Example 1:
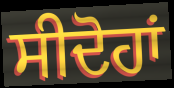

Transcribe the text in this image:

ਸੀਦੋਹਾਂ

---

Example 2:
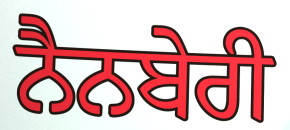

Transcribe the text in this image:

ਨੈਨਬੇਰੀ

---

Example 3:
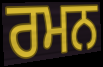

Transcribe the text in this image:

ਰਮਨ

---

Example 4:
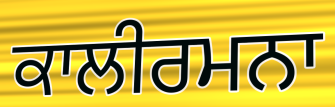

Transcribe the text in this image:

ਕਾਲੀਰਮਨਾ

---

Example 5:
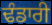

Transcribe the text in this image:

ਢੰਡਾਰੀ